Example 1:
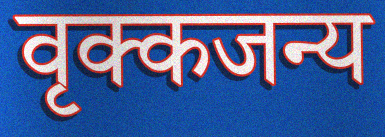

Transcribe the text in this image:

वृक्कजन्य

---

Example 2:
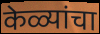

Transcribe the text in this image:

केळ्यांचा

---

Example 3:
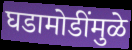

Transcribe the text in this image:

घडामोडींमुळे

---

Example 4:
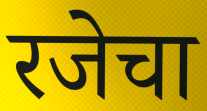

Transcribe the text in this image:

रजेचा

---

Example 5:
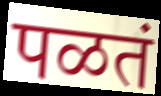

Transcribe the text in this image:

पळतं